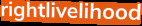
rightlivelihood